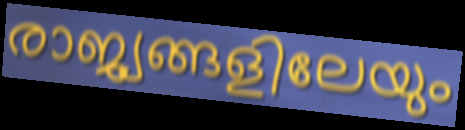
രാജ്യങ്ങളിലേയും